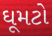
ઘૂમટો